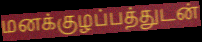
மனக்குழப்பத்துடன்